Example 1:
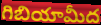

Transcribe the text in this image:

గిబియామీద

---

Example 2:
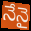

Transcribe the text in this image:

నేనై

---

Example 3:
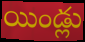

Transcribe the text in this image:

యిండ్లు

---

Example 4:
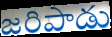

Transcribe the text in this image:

జరిపాడు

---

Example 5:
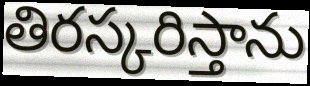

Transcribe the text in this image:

తిరస్కరిస్తాను